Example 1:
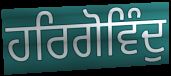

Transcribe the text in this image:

ਹਰਿਗੋਵਿੰਦੁ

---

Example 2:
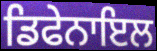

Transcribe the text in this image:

ਡਿਫੇਨਾਇਲ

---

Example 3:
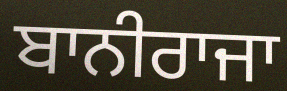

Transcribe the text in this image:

ਬਾਨੀਰਾਜਾ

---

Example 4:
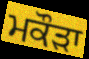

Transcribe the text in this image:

ਮਕੌੜਾ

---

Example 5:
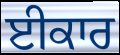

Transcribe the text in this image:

ਈਕਾਰ